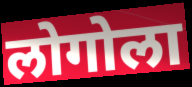
लोगोला